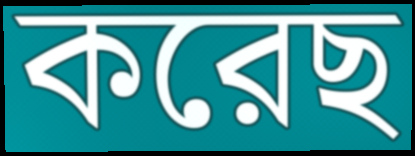
করেছ